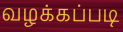
வழக்கப்படி